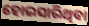
ହୋଇସାରିଥିବା